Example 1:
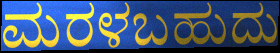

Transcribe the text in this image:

ಮರಳಬಹುದು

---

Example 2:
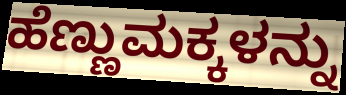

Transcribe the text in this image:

ಹೆಣ್ಣುಮಕ್ಕಳನ್ನು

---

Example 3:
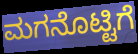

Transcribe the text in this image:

ಮಗನೊಟ್ಟಿಗೆ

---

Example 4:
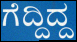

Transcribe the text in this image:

ಗೆದ್ದಿದ್ದ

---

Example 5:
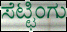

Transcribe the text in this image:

ಸೆಟ್ಟಿಂಗು